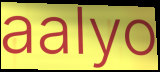
aalyo